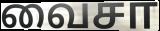
வைசா